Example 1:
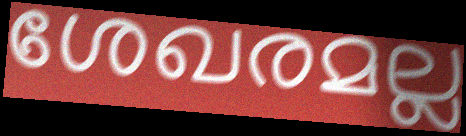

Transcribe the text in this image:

ശേഖരമല്ല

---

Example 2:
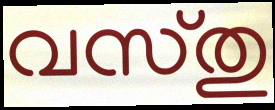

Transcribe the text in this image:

വസ്തു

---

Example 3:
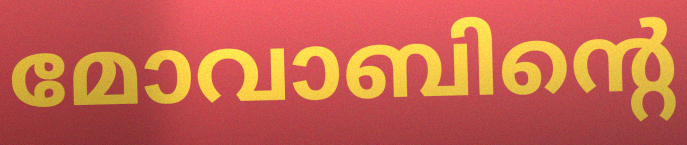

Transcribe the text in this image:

മോവാബിന്റെ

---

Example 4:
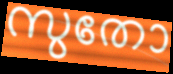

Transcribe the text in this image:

സുതോ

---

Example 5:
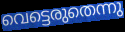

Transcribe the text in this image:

വെട്ടെരുതെന്നു